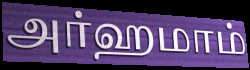
அர்ஹமாம்